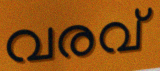
വരവ്